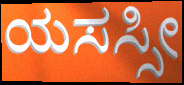
ಯಸಸ್ಸೀ